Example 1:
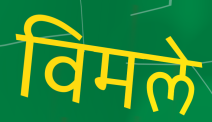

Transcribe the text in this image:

विमले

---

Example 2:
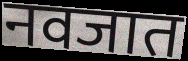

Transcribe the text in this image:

नवजात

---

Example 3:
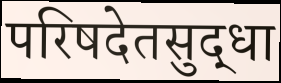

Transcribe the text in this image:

परिषदेतसुद्धा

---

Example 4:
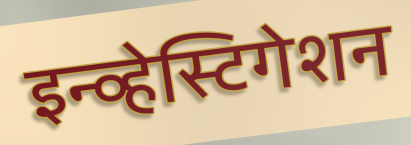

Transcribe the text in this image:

इन्व्हेस्टिगेशन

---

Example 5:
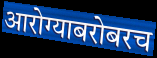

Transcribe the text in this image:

आरोग्याबरोबरच